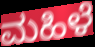
ಮಹಿಳೆ